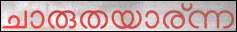
ചാരുതയാര്ന്ന